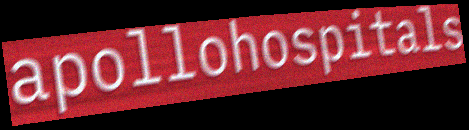
apollohospitals